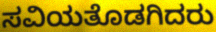
ಸವಿಯತೊಡಗಿದರು